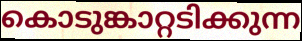
കൊടുങ്കാറ്റടിക്കുന്ന